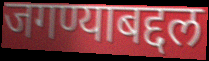
जगण्याबद्दल